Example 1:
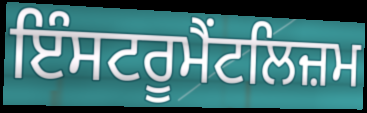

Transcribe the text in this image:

ਇੰਸਟਰੂਮੈਂਟਲਿਜ਼ਮ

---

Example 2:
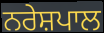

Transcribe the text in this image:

ਨਰੇਸ਼ਪਾਲ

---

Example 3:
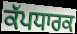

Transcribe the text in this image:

ਕੱਪਧਾਰਕ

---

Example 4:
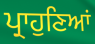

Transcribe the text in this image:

ਪ੍ਰਾਹੁਣਿਆਂ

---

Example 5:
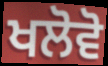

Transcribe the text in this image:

ਖਲੋਵੋ